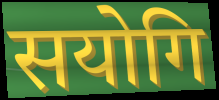
सयोगि